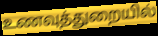
உணவுத்துறையில்